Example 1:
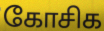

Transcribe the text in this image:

கோசிக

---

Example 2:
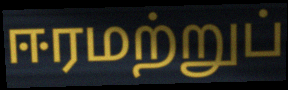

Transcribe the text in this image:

ஈரமற்றுப்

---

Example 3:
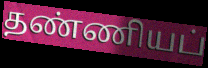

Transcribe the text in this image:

தண்ணியப்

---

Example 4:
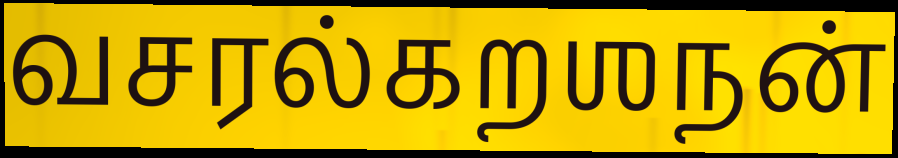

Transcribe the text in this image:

வசரல்கறஶநன்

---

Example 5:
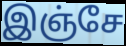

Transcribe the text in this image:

இஞ்சே